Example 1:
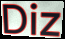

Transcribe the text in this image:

Diz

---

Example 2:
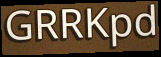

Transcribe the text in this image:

GRRKpd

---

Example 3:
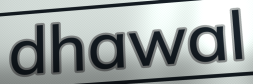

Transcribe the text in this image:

dhawal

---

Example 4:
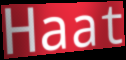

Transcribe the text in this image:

Haat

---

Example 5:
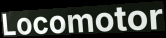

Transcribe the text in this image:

Locomotor